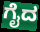
ಗೈದ